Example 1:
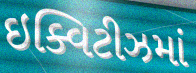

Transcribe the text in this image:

ઇક્વિટીઝમાં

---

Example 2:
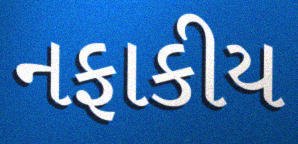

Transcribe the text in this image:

નફાકીય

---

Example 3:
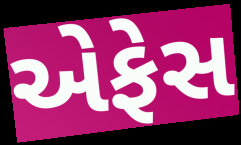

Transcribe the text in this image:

એફેસ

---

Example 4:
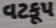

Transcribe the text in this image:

વટકૂપ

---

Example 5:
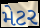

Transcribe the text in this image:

મેટર